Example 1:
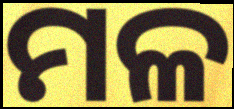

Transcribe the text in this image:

ମଳ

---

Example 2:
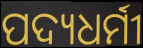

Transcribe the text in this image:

ପଦ୍ୟଧର୍ମୀ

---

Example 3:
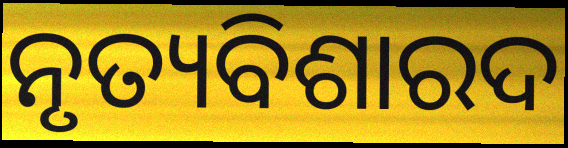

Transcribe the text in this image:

ନୃତ୍ୟବିଶାରଦ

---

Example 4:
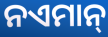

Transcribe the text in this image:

ନଏମାନ୍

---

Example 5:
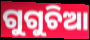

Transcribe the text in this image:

ଗୁଗୁଚିଆ